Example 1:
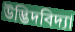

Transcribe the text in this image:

উদ্ভিদবিদ্যা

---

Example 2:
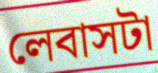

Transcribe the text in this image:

লেবাসটা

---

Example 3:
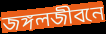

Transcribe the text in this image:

জঙ্গলজীবনে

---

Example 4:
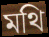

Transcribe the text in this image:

মথি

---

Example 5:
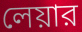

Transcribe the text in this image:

লেয়ার